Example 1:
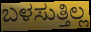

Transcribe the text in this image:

ಬಳಸುತ್ತಿಲ್ಲ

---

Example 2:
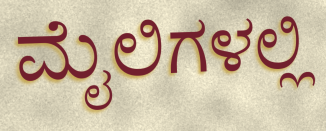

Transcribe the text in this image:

ಮೈಲಿಗಳಲ್ಲಿ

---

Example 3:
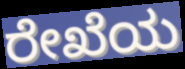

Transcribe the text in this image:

ರೇಖೆಯ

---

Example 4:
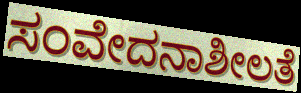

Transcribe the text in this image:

ಸಂವೇದನಾಶೀಲತೆ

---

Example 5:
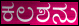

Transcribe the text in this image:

ಕಲಶನು